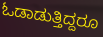
ಓಡಾಡುತ್ತಿದ್ದರೂ